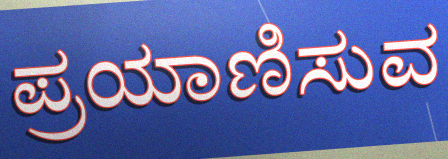
ಪ್ರಯಾಣಿಸುವ